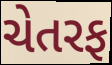
ચેતરફ